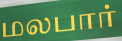
மலபார்